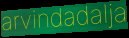
arvindadalja